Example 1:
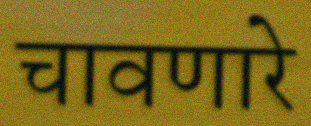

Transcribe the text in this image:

चावणारे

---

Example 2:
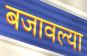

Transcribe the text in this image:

बजावल्या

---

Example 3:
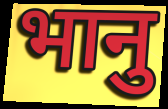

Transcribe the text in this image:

भानु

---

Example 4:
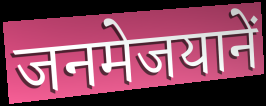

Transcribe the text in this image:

जनमेजयानें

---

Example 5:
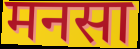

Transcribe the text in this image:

मनसा